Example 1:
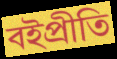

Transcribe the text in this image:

বইপ্রীতি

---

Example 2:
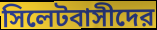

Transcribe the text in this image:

সিলেটবাসীদের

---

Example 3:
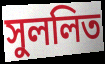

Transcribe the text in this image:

সুললিত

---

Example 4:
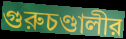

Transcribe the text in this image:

গুরুচণ্ডালীর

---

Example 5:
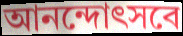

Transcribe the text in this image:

আনন্দোৎসবে